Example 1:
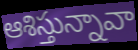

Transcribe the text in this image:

ఆశిస్తున్నావా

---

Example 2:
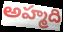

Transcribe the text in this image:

అహ్మది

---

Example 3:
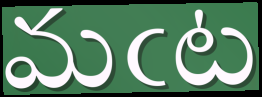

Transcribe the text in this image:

మఁట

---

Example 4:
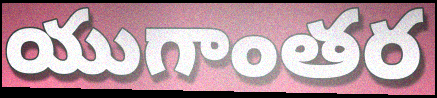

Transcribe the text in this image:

యుగాంతర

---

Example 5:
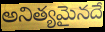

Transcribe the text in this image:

అనిత్యమైనదే